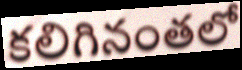
కలిగినంతలో